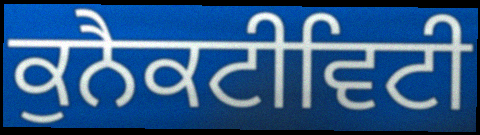
ਕੁਨੈਕਟੀਵਿਟੀ